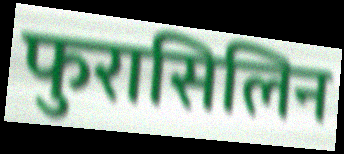
फुरासिलिन